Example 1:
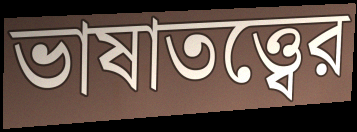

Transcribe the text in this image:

ভাষাতত্ত্বের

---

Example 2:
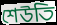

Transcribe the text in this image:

শেউতি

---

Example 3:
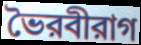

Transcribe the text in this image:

ভৈরবীরাগ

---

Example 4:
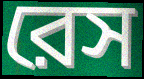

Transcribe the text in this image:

রেস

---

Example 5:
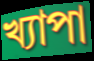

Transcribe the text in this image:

খ্যাপা